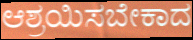
ಆಶ್ರಯಿಸಬೇಕಾದ